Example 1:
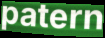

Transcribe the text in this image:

patern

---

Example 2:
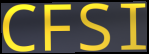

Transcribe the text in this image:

CFSI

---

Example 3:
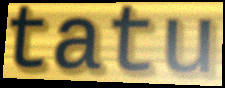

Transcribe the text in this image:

tatu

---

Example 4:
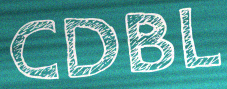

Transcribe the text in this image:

CDBL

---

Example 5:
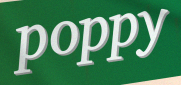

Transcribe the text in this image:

poppy